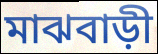
মাঝবাড়ী